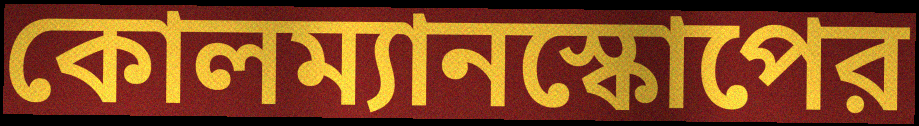
কোলম্যানস্কোপের